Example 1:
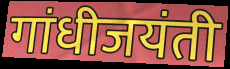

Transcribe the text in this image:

गांधीजयंती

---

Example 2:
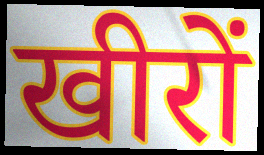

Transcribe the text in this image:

खीरों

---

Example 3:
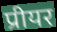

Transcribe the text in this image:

प्रीयर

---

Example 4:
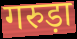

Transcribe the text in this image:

गरुड़ा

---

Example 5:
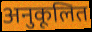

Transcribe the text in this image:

अनुकूलित